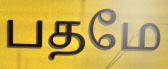
பதமே